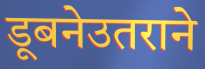
डूबनेउतराने